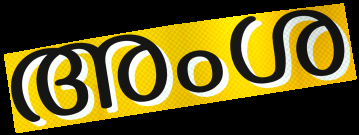
അംശ